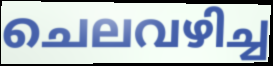
ചെലവഴിച്ച